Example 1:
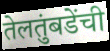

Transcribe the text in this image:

तेलतुंबडेंची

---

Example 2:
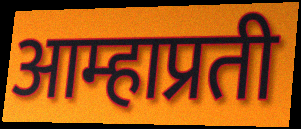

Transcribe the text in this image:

आम्हाप्रती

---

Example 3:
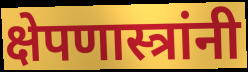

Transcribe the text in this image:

क्षेपणास्त्रांनी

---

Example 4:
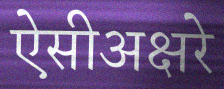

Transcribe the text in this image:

ऐसीअक्षरे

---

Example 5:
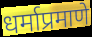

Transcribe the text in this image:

धर्माप्रमाणे